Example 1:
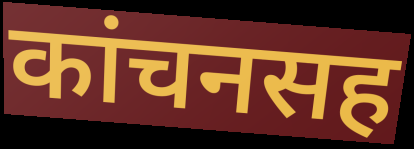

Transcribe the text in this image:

कांचनसह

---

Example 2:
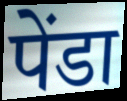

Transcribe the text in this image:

पेंडा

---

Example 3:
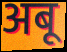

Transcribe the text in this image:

अबू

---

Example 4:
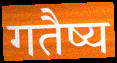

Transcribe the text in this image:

गतैष्य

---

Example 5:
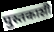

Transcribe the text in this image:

पुस्तकाशी